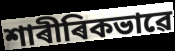
শাৰীৰিকভাৱে